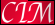
CIM